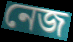
নেজ